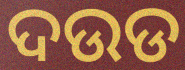
ଦଉଡ